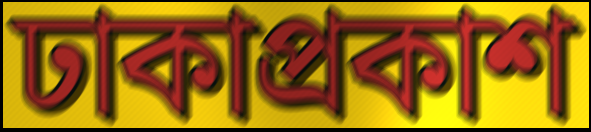
ঢাকাপ্রকাশ